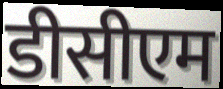
डीसीएम